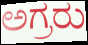
ಅಗ್ರರು